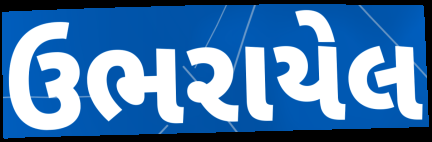
ઉભરાયેલ